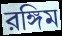
রঙ্গিম